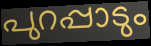
പുറപ്പാടും